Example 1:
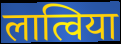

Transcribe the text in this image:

लात्विया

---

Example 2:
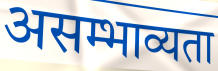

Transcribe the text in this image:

असम्भाव्यता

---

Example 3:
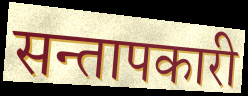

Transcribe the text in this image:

सन्तापकारी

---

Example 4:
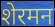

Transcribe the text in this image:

शेरमन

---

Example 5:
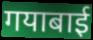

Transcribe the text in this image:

गयाबाई